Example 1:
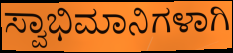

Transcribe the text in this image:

ಸ್ವಾಭಿಮಾನಿಗಳಾಗಿ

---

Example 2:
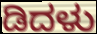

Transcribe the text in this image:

ಡಿದಳು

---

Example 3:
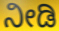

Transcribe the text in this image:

ನೀಡಿ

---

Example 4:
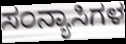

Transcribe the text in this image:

ಸಂನ್ಯಾಸಿಗಳ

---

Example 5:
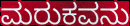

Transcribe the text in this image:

ಮರುಕವನು